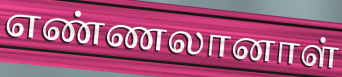
எண்ணலானாள்